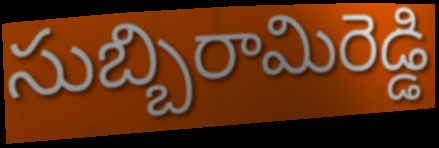
సుబ్బిరామిరెడ్డి